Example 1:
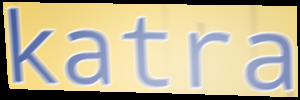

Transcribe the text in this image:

katra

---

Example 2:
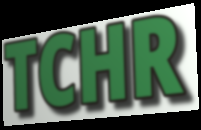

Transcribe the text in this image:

TCHR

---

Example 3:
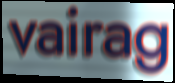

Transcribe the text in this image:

vairag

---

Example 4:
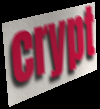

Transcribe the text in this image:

crypt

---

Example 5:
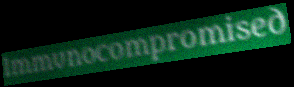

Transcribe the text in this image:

Immunocompromised